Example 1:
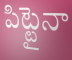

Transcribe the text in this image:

పిట్టైనా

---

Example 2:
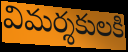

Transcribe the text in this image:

విమర్శకులకి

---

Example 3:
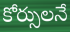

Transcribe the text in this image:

కోర్సులనే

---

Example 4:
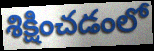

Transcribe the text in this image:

శిక్షించడంలో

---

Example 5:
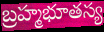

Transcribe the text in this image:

బ్రహ్మభూతస్య